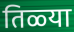
तिळ्या